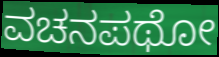
ವಚನಪಥೋ